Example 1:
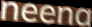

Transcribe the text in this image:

neena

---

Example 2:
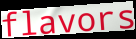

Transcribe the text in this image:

flavors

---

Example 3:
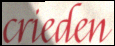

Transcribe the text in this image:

crieden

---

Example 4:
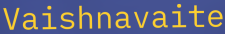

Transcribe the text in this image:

Vaishnavaite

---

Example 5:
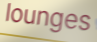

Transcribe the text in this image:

lounges